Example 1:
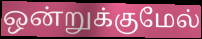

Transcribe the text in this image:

ஒன்றுக்குமேல்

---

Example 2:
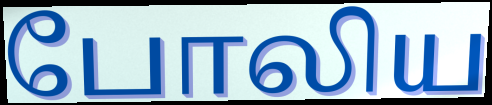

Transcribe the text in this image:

போலிய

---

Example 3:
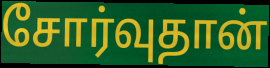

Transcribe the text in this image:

சோர்வுதான்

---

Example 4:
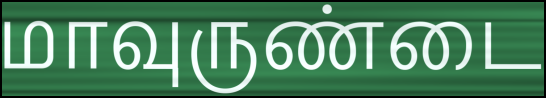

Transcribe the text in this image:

மாவுருண்டை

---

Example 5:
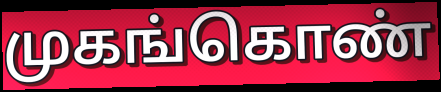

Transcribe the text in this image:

முகங்கொண்